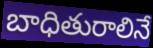
బాధితురాలినే